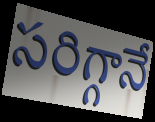
సరిగ్గానే